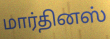
மார்தினஸ்